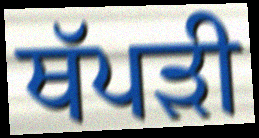
ਥੱਪੜੀ